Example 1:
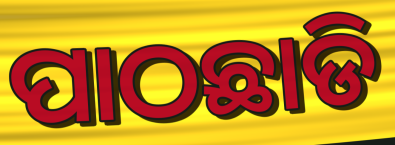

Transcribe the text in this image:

ପାଠଛାଡି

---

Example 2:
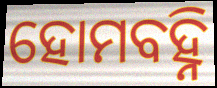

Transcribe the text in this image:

ହୋମବହ୍ନି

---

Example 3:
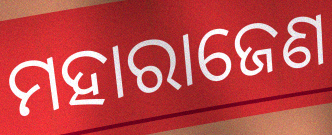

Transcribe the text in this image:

ମହାରାଜେଣ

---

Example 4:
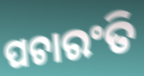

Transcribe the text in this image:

ପଚାରଂତି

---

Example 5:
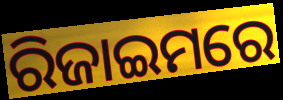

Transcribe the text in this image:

ରିଜାଇମରେ